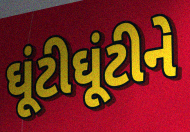
ઘૂંટીઘૂંટીને